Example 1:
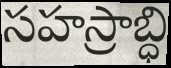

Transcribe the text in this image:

సహస్రాబ్ధి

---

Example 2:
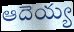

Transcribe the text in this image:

ఆదెయ్య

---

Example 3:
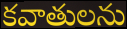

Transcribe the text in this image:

కవాతులను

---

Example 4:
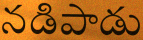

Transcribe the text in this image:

నడిపాడు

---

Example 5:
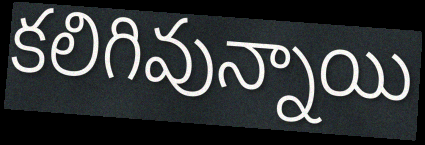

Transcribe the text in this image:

కలిగివున్నాయి